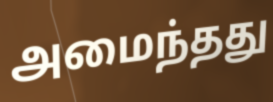
அமைந்தது